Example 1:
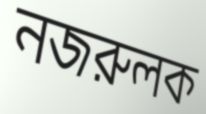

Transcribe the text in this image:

নজৰুলক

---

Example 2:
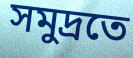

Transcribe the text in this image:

সমুদ্ৰতে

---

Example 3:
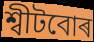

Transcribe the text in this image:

শ্বীটবোৰ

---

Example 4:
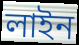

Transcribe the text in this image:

লাইন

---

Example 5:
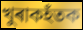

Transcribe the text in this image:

খুৰাকহঁতক